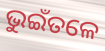
ଭୁଇଁତଳେ